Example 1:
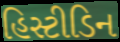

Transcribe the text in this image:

હિસ્ટીડિન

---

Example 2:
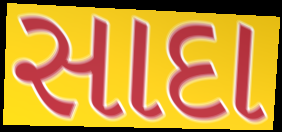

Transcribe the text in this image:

સાદા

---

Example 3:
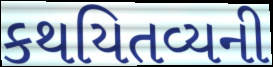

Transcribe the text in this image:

કથયિતવ્યની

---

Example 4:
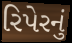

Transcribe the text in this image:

રિપેરનું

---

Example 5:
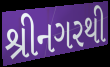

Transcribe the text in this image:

શ્રીનગરથી